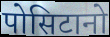
पोसिटानो